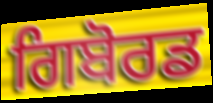
ਗਿਬੋਰਡ